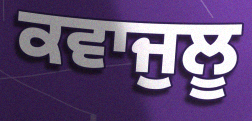
ਕਵਾਜੁਲੂ